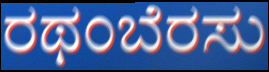
ರಥಂಬೆರಸು